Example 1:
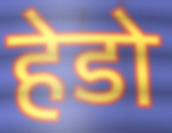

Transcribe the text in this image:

हेडो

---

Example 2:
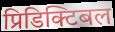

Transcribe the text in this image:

प्रिडिक्टिबल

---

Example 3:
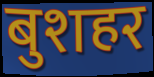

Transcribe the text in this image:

बुशहर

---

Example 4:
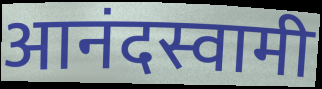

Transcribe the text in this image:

आनंदस्वामी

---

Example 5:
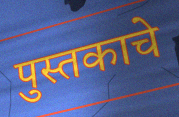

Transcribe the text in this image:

पुस्तकाचे